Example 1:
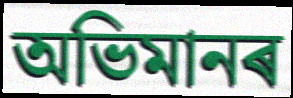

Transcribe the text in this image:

অভিমানৰ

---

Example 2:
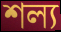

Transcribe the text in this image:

শল্য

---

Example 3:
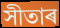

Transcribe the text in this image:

সীতাৰ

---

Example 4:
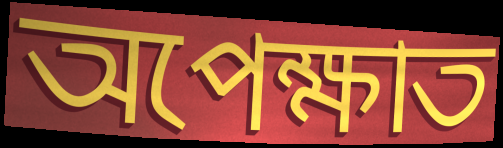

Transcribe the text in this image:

অপেক্ষাত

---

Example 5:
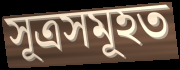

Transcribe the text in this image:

সূত্ৰসমূহত